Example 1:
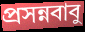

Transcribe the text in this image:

প্রসন্নবাবু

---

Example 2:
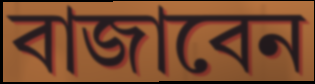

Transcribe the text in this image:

বাজাবেন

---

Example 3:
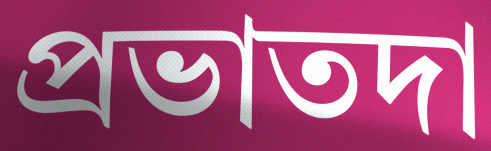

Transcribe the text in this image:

প্রভাতদা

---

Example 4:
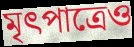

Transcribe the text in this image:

মৃৎপাত্রেও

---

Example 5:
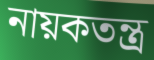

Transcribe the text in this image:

নায়কতন্ত্র